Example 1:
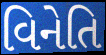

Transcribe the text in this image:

વિનેતિ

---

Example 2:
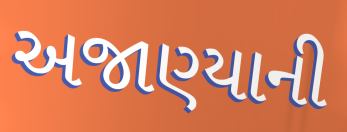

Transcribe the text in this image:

અજાણ્યાની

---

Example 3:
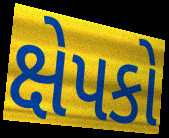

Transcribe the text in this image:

ક્ષેપકો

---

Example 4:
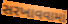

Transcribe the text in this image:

સરખાવવામાં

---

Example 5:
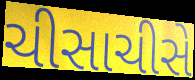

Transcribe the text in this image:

ચીસાચીસે